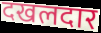
दखलदार